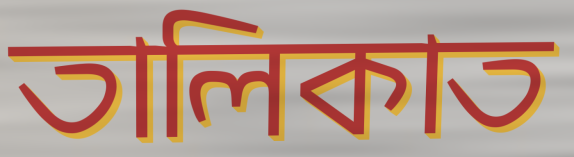
তালিকাত